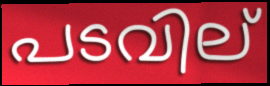
പടവില്